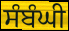
ਸੰਬੰਘੀ